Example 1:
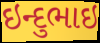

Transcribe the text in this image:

ઇન્દુભાઇ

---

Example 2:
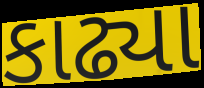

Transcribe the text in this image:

કાઢ્યા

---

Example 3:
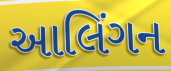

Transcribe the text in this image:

આલિંગન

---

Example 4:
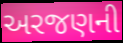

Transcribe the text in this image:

અરજણની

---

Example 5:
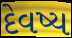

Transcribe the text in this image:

દેવષ્ય